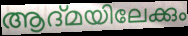
ആദ്മയിലേക്കും